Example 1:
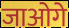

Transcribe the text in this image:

जाओगे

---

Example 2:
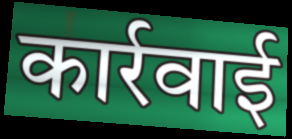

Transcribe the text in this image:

कार्रवाई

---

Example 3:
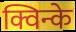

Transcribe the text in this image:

क्विन्के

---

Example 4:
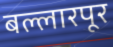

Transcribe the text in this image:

बल्लारपूर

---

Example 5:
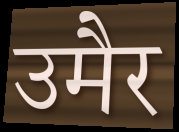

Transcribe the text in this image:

उमैर